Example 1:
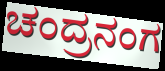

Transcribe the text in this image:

ಚಂದ್ರನಂಗ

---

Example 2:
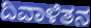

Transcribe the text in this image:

ದಿವಾಳಿತನ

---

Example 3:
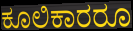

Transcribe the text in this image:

ಕೂಲಿಕಾರರೂ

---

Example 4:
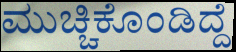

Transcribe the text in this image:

ಮುಚ್ಚಿಕೊಂಡಿದ್ದೆ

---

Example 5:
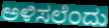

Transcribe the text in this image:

ಅಳಿಸಲೆಂದು